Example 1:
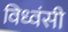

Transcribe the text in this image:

विध्वंसी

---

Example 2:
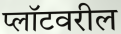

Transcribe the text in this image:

प्लॉटवरील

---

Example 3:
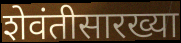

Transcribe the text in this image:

शेवंतीसारख्या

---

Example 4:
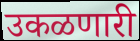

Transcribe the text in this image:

उकळणारी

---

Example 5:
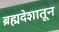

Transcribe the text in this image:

ब्रह्मदेशातून